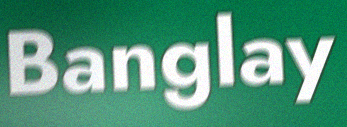
Banglay